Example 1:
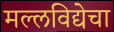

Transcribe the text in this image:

मल्लविद्येचा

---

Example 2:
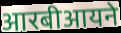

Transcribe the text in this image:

आरबीआयने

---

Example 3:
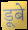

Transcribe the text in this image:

डूबे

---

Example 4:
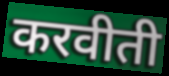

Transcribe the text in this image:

करवीती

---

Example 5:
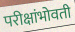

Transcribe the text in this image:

परीक्षांभोवती